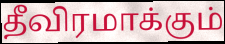
தீவிரமாக்கும்